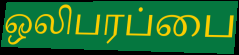
ஒலிபரப்பை